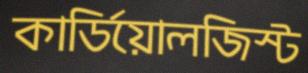
কার্ডিয়োলজিস্ট